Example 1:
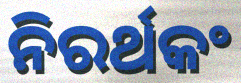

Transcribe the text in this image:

ନିରର୍ଥକଂ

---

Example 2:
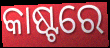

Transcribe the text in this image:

କାଷ୍ଟରେ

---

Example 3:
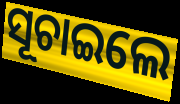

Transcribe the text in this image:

ସୂଚାଇଲେ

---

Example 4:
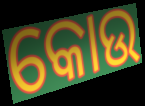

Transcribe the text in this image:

କୋଉ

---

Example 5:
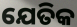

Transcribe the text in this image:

ଯେତିକ